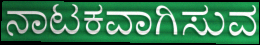
ನಾಟಕವಾಗಿಸುವ